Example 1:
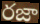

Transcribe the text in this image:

రజా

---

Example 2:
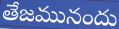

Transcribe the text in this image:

తేజమునందు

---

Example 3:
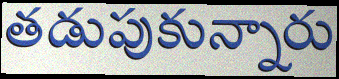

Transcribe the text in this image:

తడుపుకున్నారు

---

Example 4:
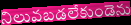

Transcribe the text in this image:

నిలువబడలేకుండెను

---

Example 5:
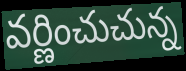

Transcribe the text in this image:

వర్ణించుచున్న